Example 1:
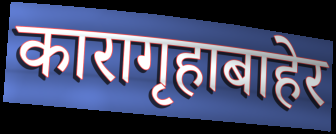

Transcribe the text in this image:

कारागृहाबाहेर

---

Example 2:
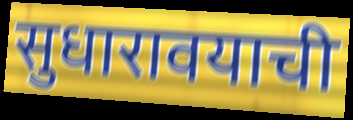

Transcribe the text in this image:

सुधारावयाची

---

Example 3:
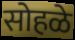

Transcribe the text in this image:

सोहळे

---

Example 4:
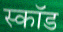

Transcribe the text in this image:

स्कॉड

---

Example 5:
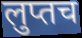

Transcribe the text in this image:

लुप्तच